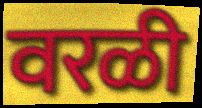
वरळी